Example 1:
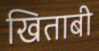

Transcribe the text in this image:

खिताबी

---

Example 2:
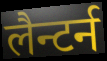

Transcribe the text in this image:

लैन्टर्न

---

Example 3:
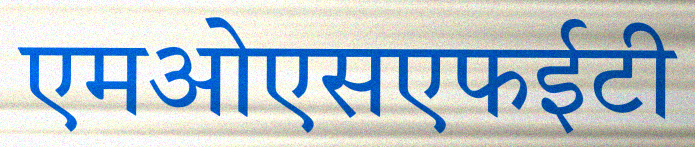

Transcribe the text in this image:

एमओएसएफईटी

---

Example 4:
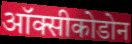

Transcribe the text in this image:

ऑक्सीकोडोन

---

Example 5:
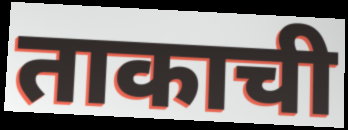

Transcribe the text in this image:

ताकाची